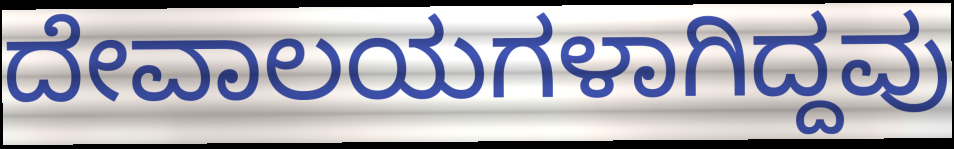
ದೇವಾಲಯಗಳಾಗಿದ್ದವು